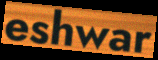
eshwar